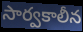
సార్వకాలీన